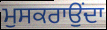
ਮੁਸਕਰਾਉਂਦਾ